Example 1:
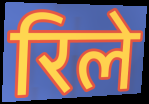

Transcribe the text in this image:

रिले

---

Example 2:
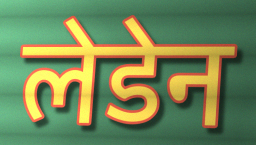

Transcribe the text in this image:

लेडेन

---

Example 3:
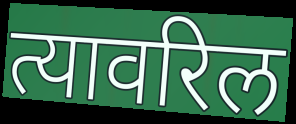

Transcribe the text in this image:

त्यावरिल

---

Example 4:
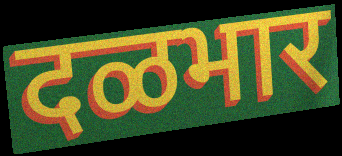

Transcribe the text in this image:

दळभार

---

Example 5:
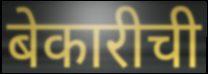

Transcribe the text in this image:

बेकारीची